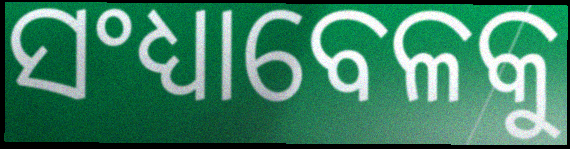
ସଂଧ୍ୟାବେଳକୁ